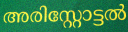
അരിസ്റ്റോട്ടൽ